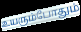
உயரும்போதும்